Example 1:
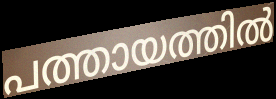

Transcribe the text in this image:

പത്തായത്തിൽ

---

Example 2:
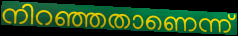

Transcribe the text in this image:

നിറഞ്ഞതാണെന്ന്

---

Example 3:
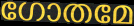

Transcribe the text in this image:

ഗോതമേ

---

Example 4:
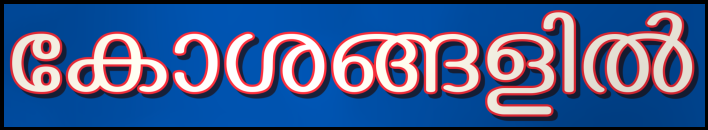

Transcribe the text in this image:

കോശങ്ങളിൽ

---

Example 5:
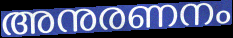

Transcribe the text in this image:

അനുരണനം